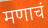
मणाचं